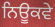
ਨਿਊਕਵੇ